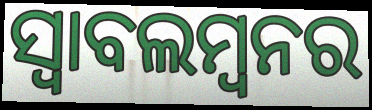
ସ୍ବାବଲମ୍ବନର